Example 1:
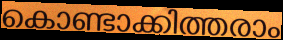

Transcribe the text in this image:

കൊണ്ടാക്കിത്തരാം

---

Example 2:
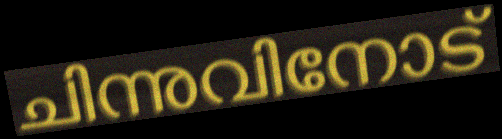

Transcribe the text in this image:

ചിന്നുവിനോട്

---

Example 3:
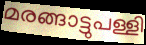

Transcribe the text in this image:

മരങ്ങാട്ടുപള്ളി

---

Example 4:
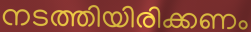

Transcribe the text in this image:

നടത്തിയിരിക്കണം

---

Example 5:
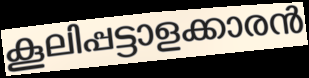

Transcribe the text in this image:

കൂലിപ്പട്ടാളക്കാരൻ